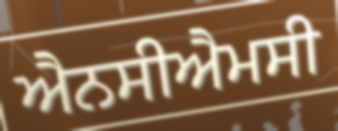
ਐਨਸੀਐਮਸੀ